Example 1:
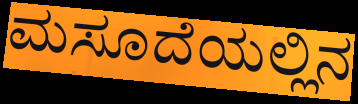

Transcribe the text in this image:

ಮಸೂದೆಯಲ್ಲಿನ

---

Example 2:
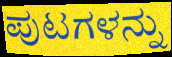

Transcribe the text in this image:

ಪುಟಗಳನ್ನು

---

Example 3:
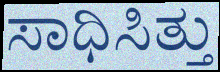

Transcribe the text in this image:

ಸಾಧಿಸಿತ್ತು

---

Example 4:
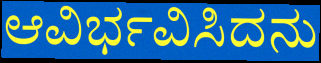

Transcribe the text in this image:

ಆವಿರ್ಭವಿಸಿದನು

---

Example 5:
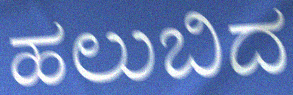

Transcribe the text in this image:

ಹಲುಬಿದ